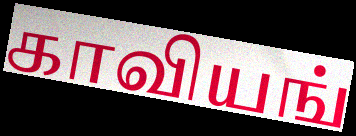
காவியங்